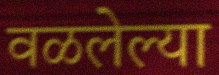
वळलेल्या